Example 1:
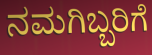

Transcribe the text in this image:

ನಮಗಿಬ್ಬರಿಗೆ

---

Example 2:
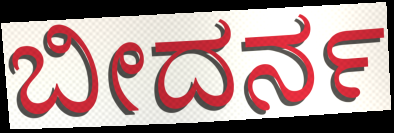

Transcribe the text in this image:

ಬೀದರ್ನ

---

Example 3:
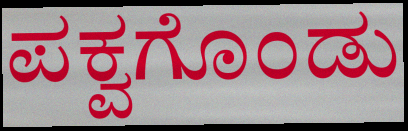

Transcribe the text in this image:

ಪಕ್ವಗೊಂಡು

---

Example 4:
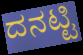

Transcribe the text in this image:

ದನಟ್ಟಿ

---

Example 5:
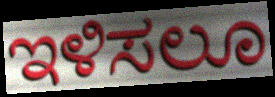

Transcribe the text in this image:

ಇಳಿಸಲೂ